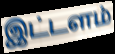
இட்டளம்